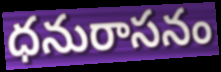
ధనురాసనం